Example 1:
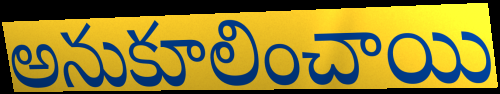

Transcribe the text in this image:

అనుకూలించాయి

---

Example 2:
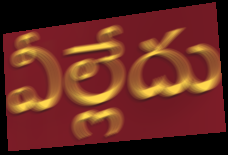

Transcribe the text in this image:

వీల్లేదు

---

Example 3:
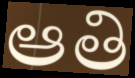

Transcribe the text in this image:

ఆతి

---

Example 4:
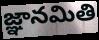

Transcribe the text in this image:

జ్ఞానమితి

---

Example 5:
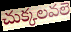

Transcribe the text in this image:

చుక్కలవలె